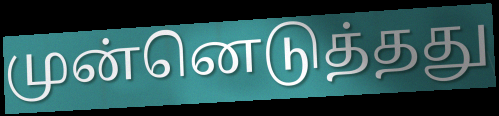
முன்னெடுத்தது